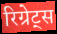
रिग्रेट्स